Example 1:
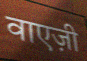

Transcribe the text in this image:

वाएज़ी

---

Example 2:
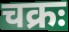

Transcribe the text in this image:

चक्रः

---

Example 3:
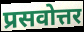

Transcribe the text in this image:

प्रसवोत्तर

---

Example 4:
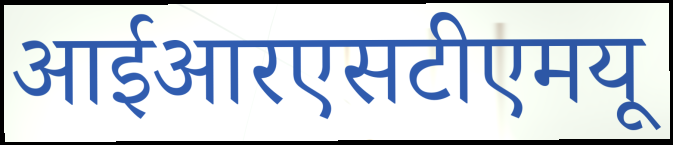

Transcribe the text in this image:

आईआरएसटीएमयू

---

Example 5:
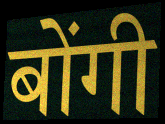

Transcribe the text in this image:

बोंगी